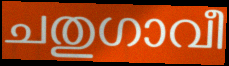
ചതുഗാവീ